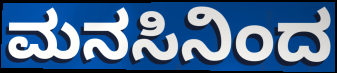
ಮನಸಿನಿಂದ